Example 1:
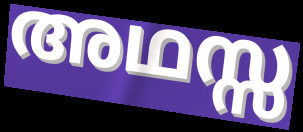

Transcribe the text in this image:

അഥസ്സ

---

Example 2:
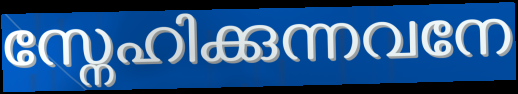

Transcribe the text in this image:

സ്നേഹിക്കുന്നവനേ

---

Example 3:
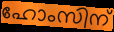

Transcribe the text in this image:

ഹോംസിന്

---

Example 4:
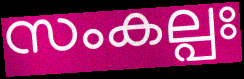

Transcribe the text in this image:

സംകല്പഃ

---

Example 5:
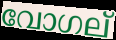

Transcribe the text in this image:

വോഗല്